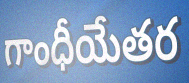
గాంధీయేతర